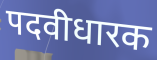
पदवीधारक